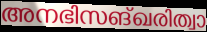
അനഭിസങ്ഖരിത്വാ